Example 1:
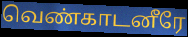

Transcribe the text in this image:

வெண்காடனீரே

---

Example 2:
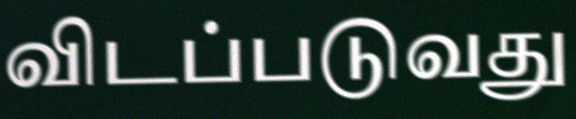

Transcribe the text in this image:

விடப்படுவது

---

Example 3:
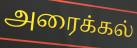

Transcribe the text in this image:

அரைக்கல்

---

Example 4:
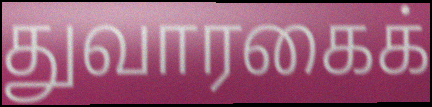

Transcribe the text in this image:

துவாரகைக்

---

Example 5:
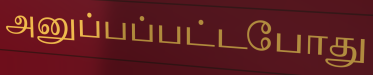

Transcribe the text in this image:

அனுப்பப்பட்டபோது